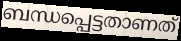
ബന്ധപ്പെട്ടതാണത്